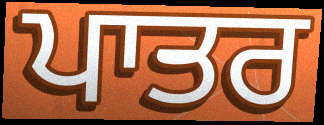
ਪਾਤਰ